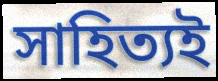
সাহিত্যই